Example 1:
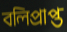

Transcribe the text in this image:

বলিপ্রাপ্ত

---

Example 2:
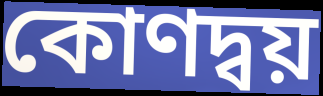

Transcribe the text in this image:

কোণদ্বয়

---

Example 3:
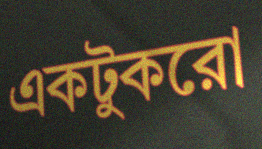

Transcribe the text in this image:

একটুকরো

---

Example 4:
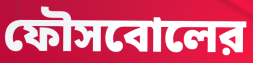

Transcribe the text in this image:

ফৌসবোলের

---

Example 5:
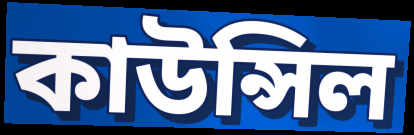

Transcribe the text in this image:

কাউন্সিল